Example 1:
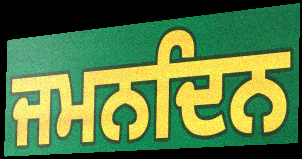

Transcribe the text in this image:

ਜਮਨਦਿਨ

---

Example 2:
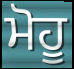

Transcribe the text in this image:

ਮੋਹੂ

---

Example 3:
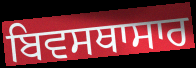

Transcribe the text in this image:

ਬਿਵਸਥਾਸਾਰ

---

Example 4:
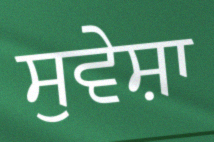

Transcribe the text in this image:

ਸੁਵੇਸ਼ਾ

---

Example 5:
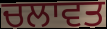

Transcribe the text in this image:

ਚਲਾਵਤ